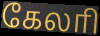
கேலரி